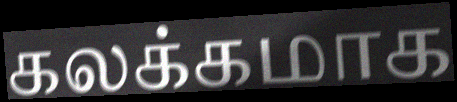
கலக்கமாக